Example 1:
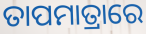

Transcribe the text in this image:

ତାପମାତ୍ରାରେ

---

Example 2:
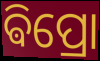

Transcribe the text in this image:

ଵିପ୍ରୋ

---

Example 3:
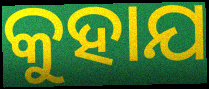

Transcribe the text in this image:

କୁହାଯ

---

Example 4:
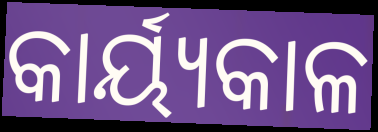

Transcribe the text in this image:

କାର୍ୟ୍ୟକାଳ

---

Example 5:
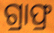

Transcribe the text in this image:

ଗ୍ରାଫ୍ର